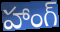
హాంగ్